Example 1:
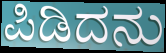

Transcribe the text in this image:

ಪಿಡಿದನು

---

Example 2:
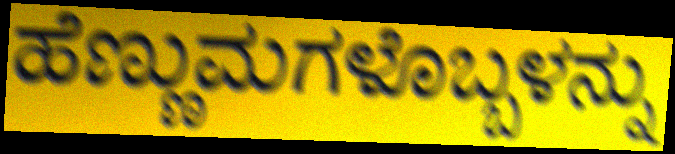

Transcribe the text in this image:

ಹೆಣ್ಣುಮಗಳೊಬ್ಬಳನ್ನು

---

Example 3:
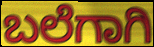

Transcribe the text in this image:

ಬಲೆಗಾಗಿ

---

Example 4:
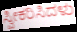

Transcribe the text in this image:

ಸ್ವೀಕರಿಸಿದಳು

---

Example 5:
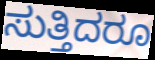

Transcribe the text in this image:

ಸುತ್ತಿದರೂ